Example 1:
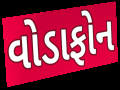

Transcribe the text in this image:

વોડાફોન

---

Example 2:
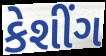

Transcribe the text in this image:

કેશીંગ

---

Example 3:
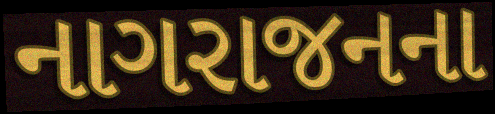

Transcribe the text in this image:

નાગરાજનના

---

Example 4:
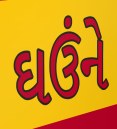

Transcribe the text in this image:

ઘઉંને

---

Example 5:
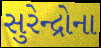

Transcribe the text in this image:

સુરેન્દ્રોના